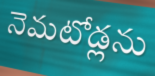
నెమటోడ్లను